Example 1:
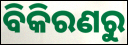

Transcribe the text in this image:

ବିକିରଣରୁ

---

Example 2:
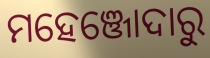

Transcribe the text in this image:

ମହେଞ୍ଜୋଦାରୁ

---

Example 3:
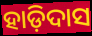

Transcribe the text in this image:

ହାଡ଼ିଦାସ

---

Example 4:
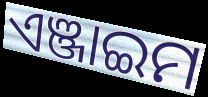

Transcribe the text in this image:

ଏଞ୍ଜାଇମ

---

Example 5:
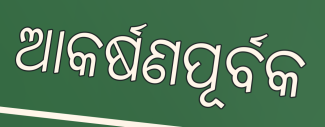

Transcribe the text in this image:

ଆକର୍ଷଣପୂର୍ବକ